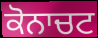
ਕੋਨਾਚਟ